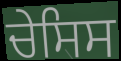
ਚੇਸਿਸ